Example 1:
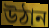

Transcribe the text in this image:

উঠান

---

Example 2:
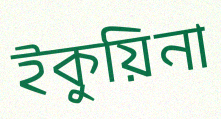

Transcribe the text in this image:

ইকুয়িনা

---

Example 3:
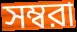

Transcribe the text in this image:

সম্বরা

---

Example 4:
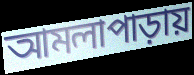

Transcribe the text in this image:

আমলাপাড়ায়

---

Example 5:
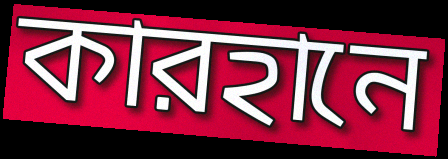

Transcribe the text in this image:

কারহানে